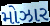
મોઝાર